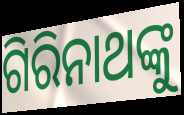
ଗିରିନାଥଙ୍କୁ